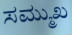
ಸಮ್ಮುಖ